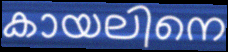
കായലിനെ